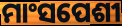
ମାଂସପେଶୀ